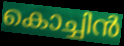
കൊച്ചിൻ